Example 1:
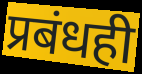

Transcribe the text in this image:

प्रबंधही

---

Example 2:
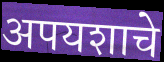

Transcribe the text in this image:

अपयशाचे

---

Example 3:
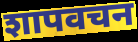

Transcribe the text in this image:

शापवचन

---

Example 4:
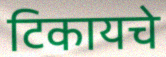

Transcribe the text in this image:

टिकायचे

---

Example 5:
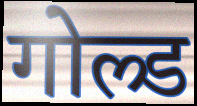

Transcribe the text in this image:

गोल्ड